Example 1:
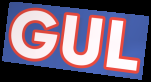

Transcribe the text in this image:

GUL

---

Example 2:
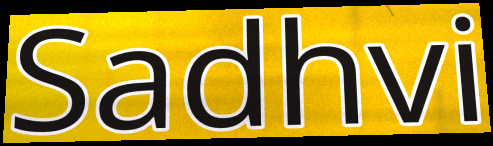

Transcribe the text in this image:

Sadhvi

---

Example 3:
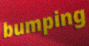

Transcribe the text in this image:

bumping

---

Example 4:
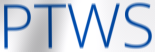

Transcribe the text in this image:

PTWS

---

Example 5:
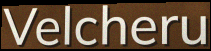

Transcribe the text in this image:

Velcheru